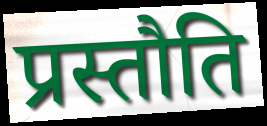
प्रस्तौति